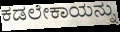
ಕಡಲೇಕಾಯನ್ನು